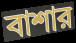
বাশার